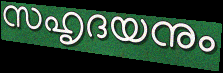
സഹൃദയനും